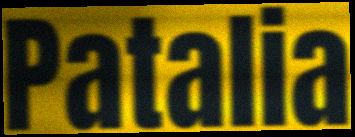
Patalia